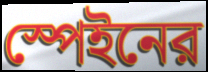
স্পেইনের